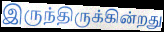
இருந்திருக்கின்றது